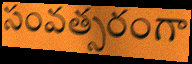
సంవత్సరంగా